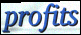
profits